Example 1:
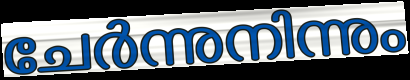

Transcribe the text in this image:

ചേർന്നുനിന്നും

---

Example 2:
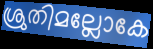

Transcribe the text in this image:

ശ്രുതിമല്ലോകേ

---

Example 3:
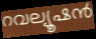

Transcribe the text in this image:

റവല്യൂഷൻ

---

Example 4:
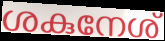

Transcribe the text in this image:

ശകുനേശ്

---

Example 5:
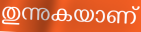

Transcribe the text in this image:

തുന്നുകയാണ്